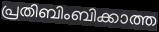
പ്രതിബിംബിക്കാത്ത